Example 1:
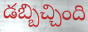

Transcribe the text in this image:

డబ్బిచ్చింది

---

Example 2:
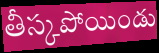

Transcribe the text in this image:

తీస్కపోయిండు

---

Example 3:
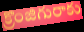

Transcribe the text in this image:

క్రొంజిగురాకు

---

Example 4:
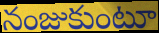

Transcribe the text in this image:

నంజుకుంటూ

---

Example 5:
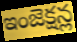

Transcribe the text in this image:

ఇంజెక్షన్ల